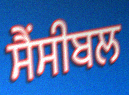
ਸੈਂਸੀਬਲ